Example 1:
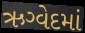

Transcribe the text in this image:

ઋગ્વેદમાં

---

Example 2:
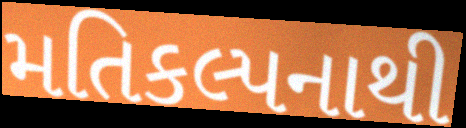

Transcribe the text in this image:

મતિકલ્પનાથી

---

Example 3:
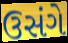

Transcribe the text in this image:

ઉસંગે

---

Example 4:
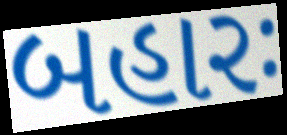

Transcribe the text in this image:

બહારઃ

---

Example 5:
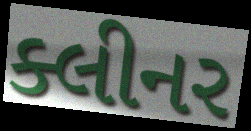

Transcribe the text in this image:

ક્લીનર